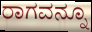
ರಾಗವನ್ನೂ